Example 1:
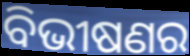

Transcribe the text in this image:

ବିଭୀଷଣର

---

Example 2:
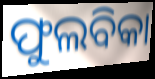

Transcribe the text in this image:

ଫୁଲବିକା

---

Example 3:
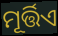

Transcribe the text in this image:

ମୂର୍ତ୍ତିଏ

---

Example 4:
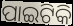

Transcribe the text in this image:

ପାଇଟିକି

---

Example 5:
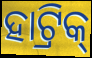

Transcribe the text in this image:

ହାଟ୍ରିକ୍